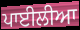
ਪਾਈਲੀਆ